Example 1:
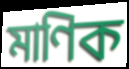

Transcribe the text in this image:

মাণিক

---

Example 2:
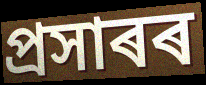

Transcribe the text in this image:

প্ৰসাৰৰ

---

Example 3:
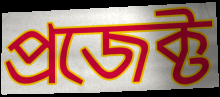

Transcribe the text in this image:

প্ৰজেক্ট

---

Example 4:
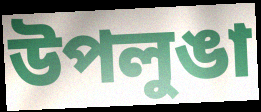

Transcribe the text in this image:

উপলুঙা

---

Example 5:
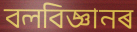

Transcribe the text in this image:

বলবিজ্ঞানৰ